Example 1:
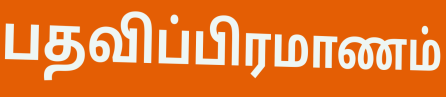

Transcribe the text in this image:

பதவிப்பிரமாணம்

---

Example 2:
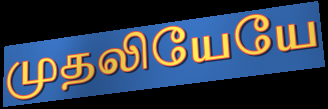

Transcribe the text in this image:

முதலியேயே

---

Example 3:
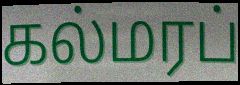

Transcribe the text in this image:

கல்மரப்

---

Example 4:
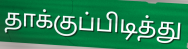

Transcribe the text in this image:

தாக்குப்பிடித்து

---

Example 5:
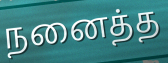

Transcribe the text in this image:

நனைத்த